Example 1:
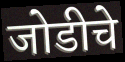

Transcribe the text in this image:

जोडीचे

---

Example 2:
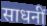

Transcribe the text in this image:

साधनीं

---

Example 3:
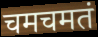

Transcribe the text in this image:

चमचमतं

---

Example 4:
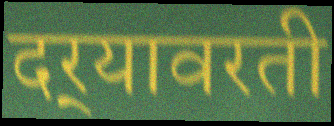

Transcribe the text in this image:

दर्यावरती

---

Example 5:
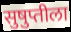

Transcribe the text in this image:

सुषुप्तीला